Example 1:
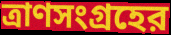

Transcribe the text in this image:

ত্রাণসংগ্রহের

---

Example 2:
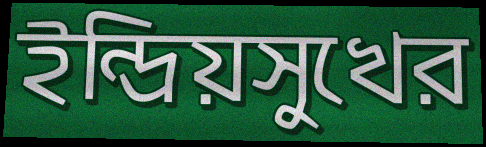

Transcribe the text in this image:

ইন্দ্রিয়সুখের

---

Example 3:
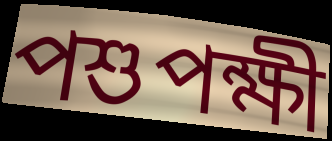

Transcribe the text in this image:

পশুপক্ষী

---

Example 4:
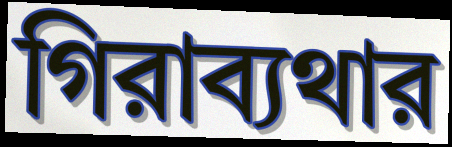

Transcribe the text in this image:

গিরাব্যথার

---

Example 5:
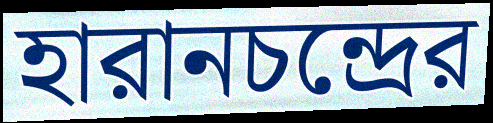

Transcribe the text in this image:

হারানচন্দ্রের